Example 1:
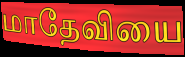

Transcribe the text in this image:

மாதேவியை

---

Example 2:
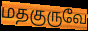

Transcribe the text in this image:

மதகுருவே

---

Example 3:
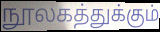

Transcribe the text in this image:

நூலகத்துக்கும்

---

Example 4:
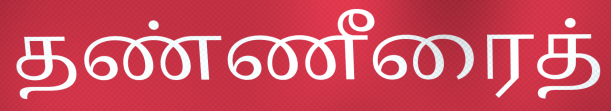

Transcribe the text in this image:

தண்ணீரைத்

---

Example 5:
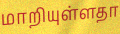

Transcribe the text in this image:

மாறியுள்ளதா